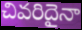
చివరిదైనా